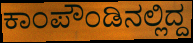
ಕಾಂಪೌಂಡಿನಲ್ಲಿದ್ದ